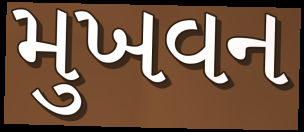
મુખવન